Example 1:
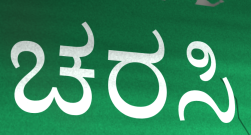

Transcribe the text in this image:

ಚರಸಿ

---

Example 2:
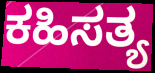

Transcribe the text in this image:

ಕಹಿಸತ್ಯ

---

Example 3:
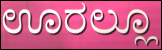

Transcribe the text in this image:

ಊರಲ್ಲೂ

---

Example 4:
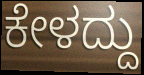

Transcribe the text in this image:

ಕೇಳದ್ದು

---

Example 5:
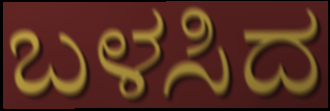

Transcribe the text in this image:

ಬಳಸಿದ